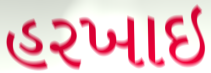
હરખાઇ